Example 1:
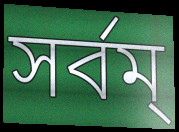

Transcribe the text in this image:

সর্বম্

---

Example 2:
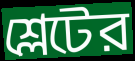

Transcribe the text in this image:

শ্লেটের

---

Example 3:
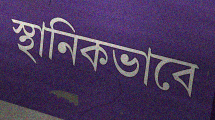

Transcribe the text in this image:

স্থানিকভাবে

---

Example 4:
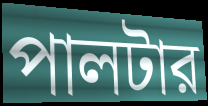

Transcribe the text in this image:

পালটার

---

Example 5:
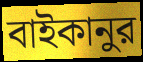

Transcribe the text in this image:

বাইকানুর